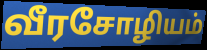
வீரசோழியம்